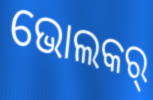
ଭୋଲକର୍